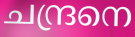
ചന്ദ്രനെ